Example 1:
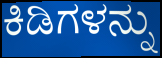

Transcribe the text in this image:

ಕಿಡಿಗಳನ್ನು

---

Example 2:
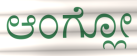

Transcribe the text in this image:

ಆಂಗ್ಲೋ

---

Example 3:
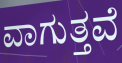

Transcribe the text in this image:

ವಾಗುತ್ತವೆ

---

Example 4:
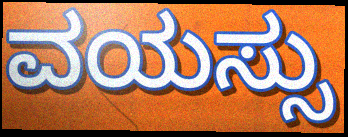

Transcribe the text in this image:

ವಯಸ್ಸು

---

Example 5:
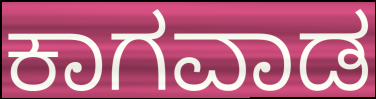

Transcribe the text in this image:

ಕಾಗವಾಡ